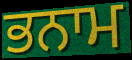
ਭਨਾਮ